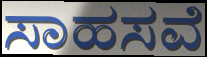
ಸಾಹಸವೆ